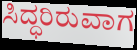
ಸಿದ್ಧರಿರುವಾಗ